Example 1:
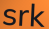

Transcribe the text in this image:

srk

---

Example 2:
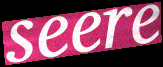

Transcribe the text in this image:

seere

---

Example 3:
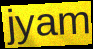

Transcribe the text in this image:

jyam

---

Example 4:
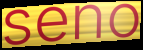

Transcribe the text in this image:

seno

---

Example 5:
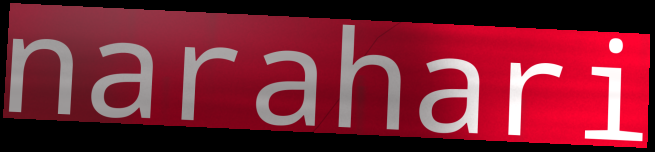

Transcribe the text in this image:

narahari